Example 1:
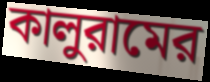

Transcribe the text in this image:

কালুরামের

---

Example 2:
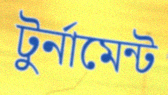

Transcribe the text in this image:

টুর্নামেন্ট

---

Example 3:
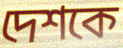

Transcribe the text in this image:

দেশকে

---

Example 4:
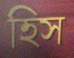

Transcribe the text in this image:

হিস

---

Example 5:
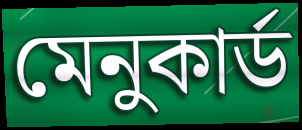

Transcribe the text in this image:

মেনুকার্ড